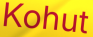
Kohut